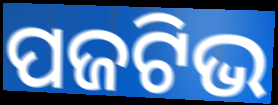
ପଜଟିଭ